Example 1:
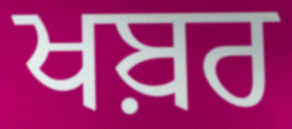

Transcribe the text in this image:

ਖਬ਼ਰ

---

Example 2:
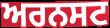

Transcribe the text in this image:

ਅਰਨਸਟ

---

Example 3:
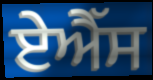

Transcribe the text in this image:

ਏਐੱਸ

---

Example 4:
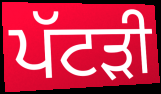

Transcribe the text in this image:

ਪੱਟੜੀ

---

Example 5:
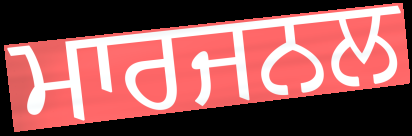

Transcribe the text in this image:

ਮਾਰਜਨਲ